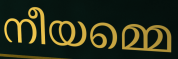
നീയമ്മെ